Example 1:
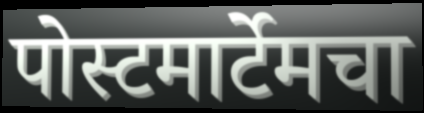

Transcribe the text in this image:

पोस्टमार्टेमचा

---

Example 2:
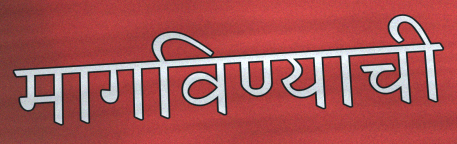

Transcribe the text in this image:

मागविण्याची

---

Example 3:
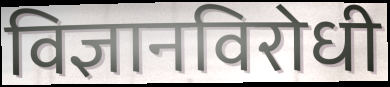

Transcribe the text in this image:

विज्ञानविरोधी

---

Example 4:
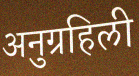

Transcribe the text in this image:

अनुग्रहिली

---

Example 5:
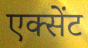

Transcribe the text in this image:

एक्सेंट